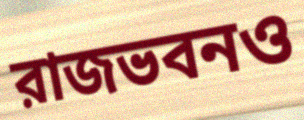
রাজভবনও